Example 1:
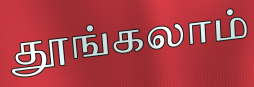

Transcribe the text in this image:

தூங்கலாம்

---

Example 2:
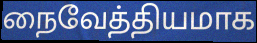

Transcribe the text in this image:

நைவேத்தியமாக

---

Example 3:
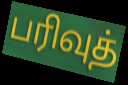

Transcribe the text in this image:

பரிவுத்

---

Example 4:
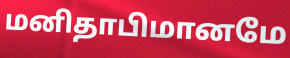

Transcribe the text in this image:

மனிதாபிமானமே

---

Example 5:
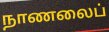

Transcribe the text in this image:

நாணலைப்